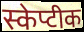
स्केप्टीक